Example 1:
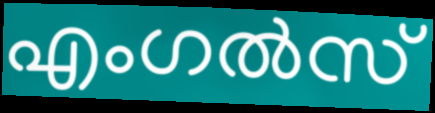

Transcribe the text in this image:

എംഗൽസ്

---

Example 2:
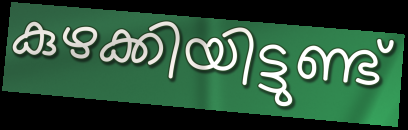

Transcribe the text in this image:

കുഴക്കിയിട്ടുണ്ട്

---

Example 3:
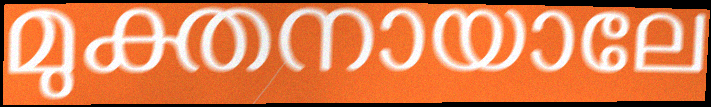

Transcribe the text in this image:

മുക്തനായാലേ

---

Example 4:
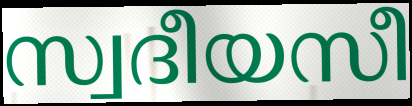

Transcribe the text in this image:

സ്വദീയസീ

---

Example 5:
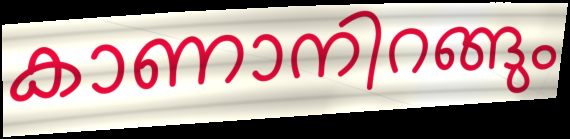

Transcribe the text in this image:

കാണാനിറങ്ങും